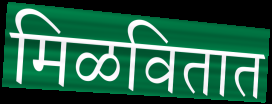
मिळवितात